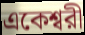
একেশ্বরী